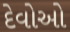
દેવોઓ